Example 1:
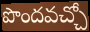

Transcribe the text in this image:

పొందవచ్చో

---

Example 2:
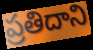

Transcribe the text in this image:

ప్రతిదాని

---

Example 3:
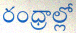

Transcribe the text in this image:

రంధ్రాల్లో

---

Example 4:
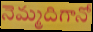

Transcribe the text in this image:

నెమ్మదిగానో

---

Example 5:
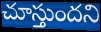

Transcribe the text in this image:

చూస్తుందని